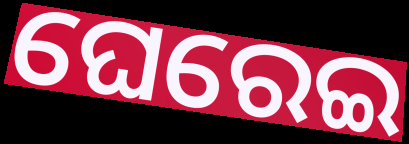
ଘେରେଇ